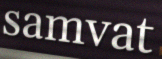
samvat